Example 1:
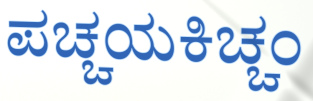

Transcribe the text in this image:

ಪಚ್ಚಯಕಿಚ್ಚಂ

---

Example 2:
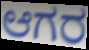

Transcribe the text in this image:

ಆಗರ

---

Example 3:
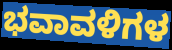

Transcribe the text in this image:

ಭವಾವಳಿಗಳ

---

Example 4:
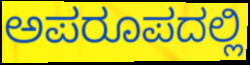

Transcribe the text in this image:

ಅಪರೂಪದಲ್ಲಿ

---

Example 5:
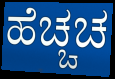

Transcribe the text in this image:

ಹೆಚ್ಚಚ